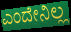
ಎಂದೇನಿಲ್ಲ